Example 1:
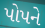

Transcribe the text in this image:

પોપને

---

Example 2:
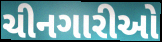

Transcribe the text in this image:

ચીનગારીઓ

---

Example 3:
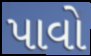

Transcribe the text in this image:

પાવો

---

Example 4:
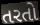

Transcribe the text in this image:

તરતો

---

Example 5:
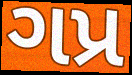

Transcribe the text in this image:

ગપ્ર